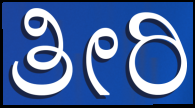
ತೀರಿ